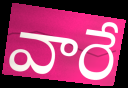
వారే